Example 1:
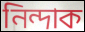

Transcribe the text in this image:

নিন্দাক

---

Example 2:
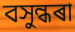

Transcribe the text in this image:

বসুন্ধৰা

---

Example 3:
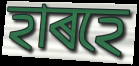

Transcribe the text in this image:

হাৰহে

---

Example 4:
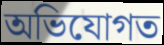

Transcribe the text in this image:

অভিযোগত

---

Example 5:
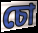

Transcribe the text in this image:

চো